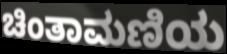
ಚಿಂತಾಮಣಿಯ